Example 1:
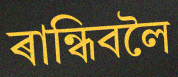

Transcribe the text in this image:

ৰান্ধিবলৈ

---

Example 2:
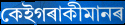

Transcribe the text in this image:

কেইগৰাকীমানৰ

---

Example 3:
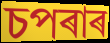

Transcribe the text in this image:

চপৰাৰ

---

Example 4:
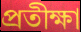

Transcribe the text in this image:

প্ৰতীক্ষা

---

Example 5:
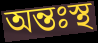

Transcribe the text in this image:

অন্তঃস্থ